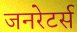
जनरेटर्स